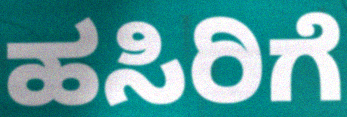
ಹಸಿರಿಗೆ